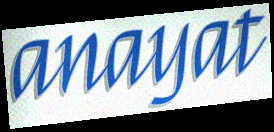
anayat